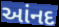
આંનદ